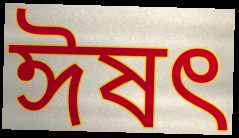
ঈষত্‍